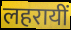
लहरायीं